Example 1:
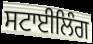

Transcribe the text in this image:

ਸਟਾਈਲਿੰਗ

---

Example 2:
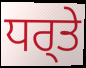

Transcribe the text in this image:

ਧਰ੍ਤੇ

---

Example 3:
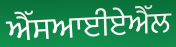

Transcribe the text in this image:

ਐੱਸਆਈਏਐੱਲ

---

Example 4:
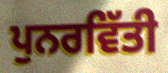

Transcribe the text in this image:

ਪੁਨਰਵਿੱਤੀ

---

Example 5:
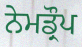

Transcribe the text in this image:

ਨੇਮਡ੍ਰੌਪ